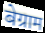
बेग्राम